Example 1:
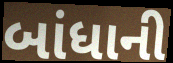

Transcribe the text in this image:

બાંધાની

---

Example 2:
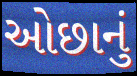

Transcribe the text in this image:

ઓછાનું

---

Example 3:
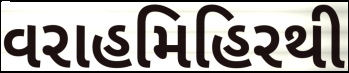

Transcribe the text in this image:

વરાહમિહિરથી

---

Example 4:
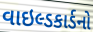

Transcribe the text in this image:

વાઇલ્ડકાર્ડનો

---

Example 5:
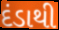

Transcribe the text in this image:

દંડાથી